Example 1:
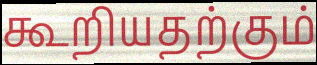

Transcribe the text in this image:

கூறியதற்கும்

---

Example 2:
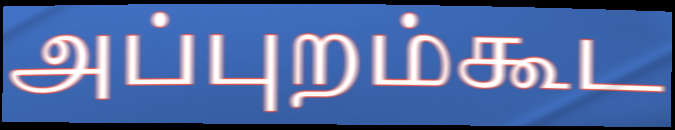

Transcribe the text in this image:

அப்புறம்கூட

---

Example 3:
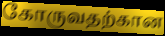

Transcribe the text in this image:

கோருவதற்கான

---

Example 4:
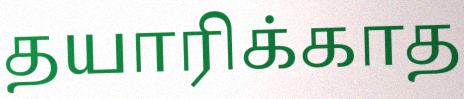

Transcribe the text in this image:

தயாரிக்காத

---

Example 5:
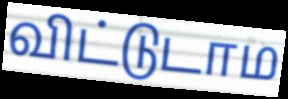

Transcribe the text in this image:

விட்டுடாம